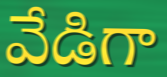
వేడిగా